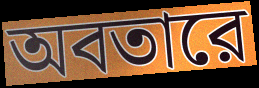
অবতারে